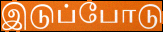
இடுப்போடு